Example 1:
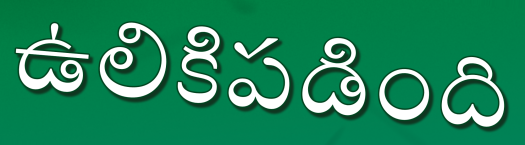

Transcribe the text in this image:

ఉలికిపడింది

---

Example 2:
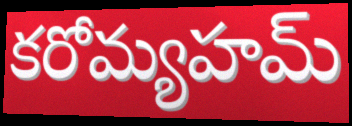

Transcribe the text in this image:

కరోమ్యహమ్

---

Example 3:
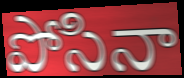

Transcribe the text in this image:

పోసినా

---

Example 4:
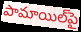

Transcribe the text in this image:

పామాయిల్‌పై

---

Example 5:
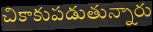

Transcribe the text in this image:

చికాకుపడుతున్నారు